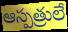
ఆస్పత్రులే